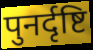
पुनर्दृष्टि